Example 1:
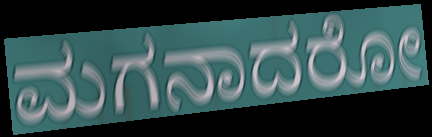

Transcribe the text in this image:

ಮಗನಾದರೋ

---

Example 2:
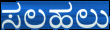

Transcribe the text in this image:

ಸಲಹಲು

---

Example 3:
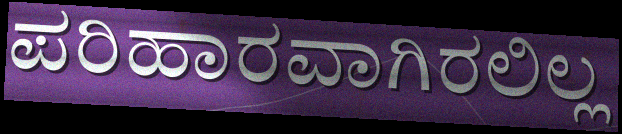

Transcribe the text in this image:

ಪರಿಹಾರವಾಗಿರಲಿಲ್ಲ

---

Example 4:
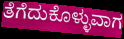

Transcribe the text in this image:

ತೆಗೆದುಕೊಳ್ಳುವಾಗ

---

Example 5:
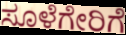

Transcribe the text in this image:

ಸೂಳೆಗೇರಿಗೆ